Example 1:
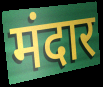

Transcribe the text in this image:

मंदार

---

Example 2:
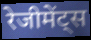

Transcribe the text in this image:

रेजीमेंट्स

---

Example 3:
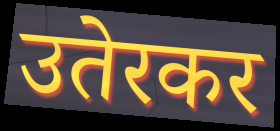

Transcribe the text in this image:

उतेरकर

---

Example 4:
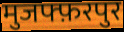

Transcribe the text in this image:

मुजफ्फ़रपुर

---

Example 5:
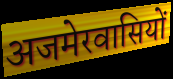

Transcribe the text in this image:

अजमेरवासियों